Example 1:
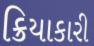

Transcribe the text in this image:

ક્રિયાકારી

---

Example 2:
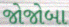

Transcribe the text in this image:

જોજોબા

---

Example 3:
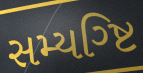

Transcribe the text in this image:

સમ્યગ્ષ્ટિ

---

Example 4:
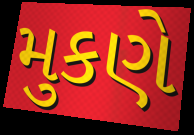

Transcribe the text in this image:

મુકણે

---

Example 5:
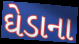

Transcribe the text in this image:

ઘેડાના